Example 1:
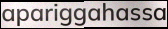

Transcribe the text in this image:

apariggahassa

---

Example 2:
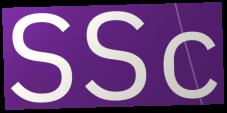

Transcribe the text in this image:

SSc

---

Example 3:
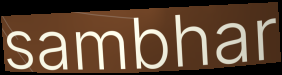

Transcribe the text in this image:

sambhar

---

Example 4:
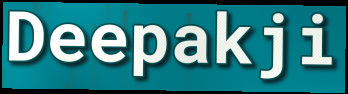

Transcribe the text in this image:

Deepakji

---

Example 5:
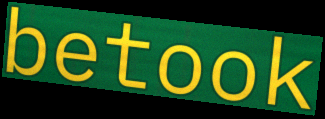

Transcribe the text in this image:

betook